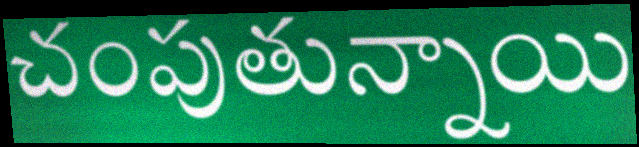
చంపుతున్నాయి